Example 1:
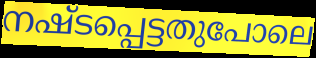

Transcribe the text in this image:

നഷ്ടപ്പെട്ടതുപോലെ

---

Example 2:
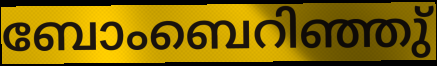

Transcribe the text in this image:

ബോംബെറിഞ്ഞു്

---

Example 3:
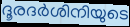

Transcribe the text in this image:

ദൂരദർശിനിയുടെ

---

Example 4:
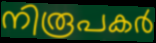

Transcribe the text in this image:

നിരൂപകർ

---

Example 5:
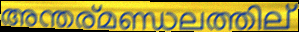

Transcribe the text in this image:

അന്തര്മണ്ഡലത്തില്